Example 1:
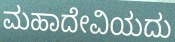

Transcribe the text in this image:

ಮಹಾದೇವಿಯದು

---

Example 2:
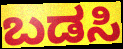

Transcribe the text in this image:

ಬಡಸಿ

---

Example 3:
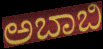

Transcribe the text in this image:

ಅಬಾಬಿ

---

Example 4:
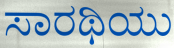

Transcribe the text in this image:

ಸಾರಥಿಯು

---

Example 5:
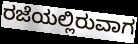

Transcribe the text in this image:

ರಜೆಯಲ್ಲಿರುವಾಗ